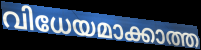
വിധേയമാക്കാത്ത